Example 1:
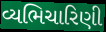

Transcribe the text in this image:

વ્યભિચારિણી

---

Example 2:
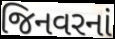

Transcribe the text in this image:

જિનવરનાં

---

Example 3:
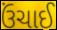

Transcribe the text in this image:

ઉંચાઈ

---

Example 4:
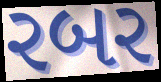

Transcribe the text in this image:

રબર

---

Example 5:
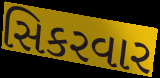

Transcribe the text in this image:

સિકરવાર